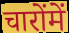
चारोंमें